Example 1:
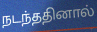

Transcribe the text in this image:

நடந்ததினால்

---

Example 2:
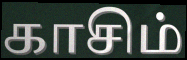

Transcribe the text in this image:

காசிம்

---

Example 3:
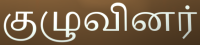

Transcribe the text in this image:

குழுவினர்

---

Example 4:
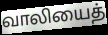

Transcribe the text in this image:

வாலியைத்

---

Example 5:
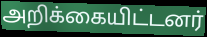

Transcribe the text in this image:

அறிக்கையிட்டனர்